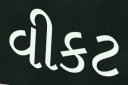
વીકટ